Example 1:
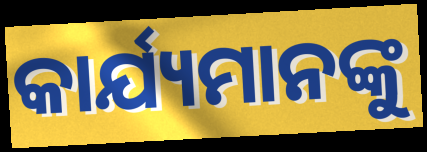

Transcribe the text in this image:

କାର୍ଯ୍ୟମାନଙ୍କୁ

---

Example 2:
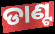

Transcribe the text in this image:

ଡାଣ୍ଟ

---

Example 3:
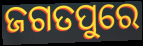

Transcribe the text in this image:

ଜଗତପୁରେ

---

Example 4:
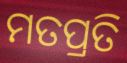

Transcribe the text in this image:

ମତପ୍ରତି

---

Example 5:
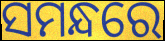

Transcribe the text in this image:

ସମନ୍ଧରେ